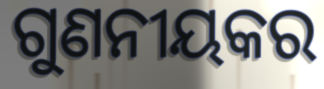
ଗୁଣନୀୟକର